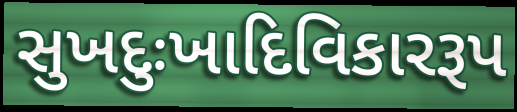
સુખદુઃખાદિવિકારરૂપ